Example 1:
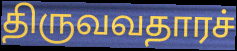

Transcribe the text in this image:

திருவவதாரச்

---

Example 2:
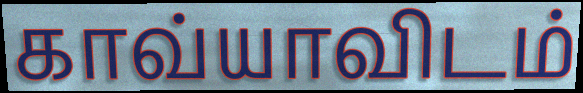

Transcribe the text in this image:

காவ்யாவிடம்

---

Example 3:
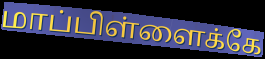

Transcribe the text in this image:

மாப்பிள்ளைக்கே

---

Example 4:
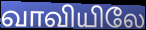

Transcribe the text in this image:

வாவியிலே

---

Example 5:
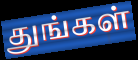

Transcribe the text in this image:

துங்கள்